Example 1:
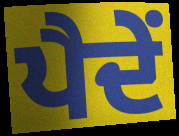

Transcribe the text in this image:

ਪੈਦੇਂ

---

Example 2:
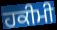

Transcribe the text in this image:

ਹਕੀਮੀ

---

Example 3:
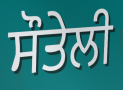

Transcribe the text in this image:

ਸੌਤੇਲੀ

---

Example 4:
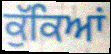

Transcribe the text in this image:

ਕੁੱਕਿਆਂ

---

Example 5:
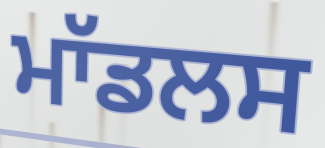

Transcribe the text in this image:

ਮਾੱਡਲਸ